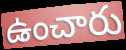
ఉంచారు